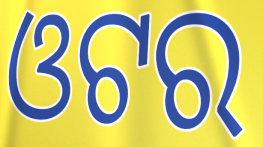
ଓଟର